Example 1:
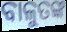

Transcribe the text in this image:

ବାଳୁତଙ୍କ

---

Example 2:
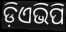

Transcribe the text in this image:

ଡ଼ିଏଭିପି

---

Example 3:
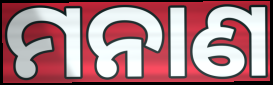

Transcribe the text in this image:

ମନାଣ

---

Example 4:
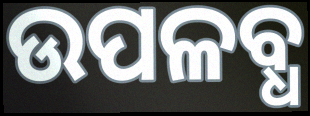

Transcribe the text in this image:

ଉପଳବ୍ଧ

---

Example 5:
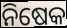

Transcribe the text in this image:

ନିଷେକ